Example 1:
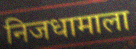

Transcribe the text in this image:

निजधामाला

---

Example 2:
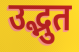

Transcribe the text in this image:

उद्भुत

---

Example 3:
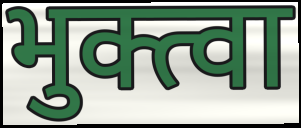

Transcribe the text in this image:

भुक्त्वा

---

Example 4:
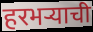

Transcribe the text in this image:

हरभऱ्याची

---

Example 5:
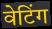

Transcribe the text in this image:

वेटिंग